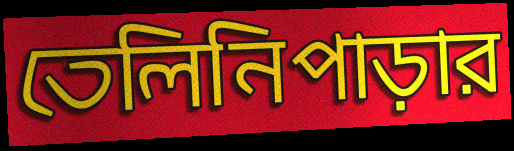
তেলিনিপাড়ার